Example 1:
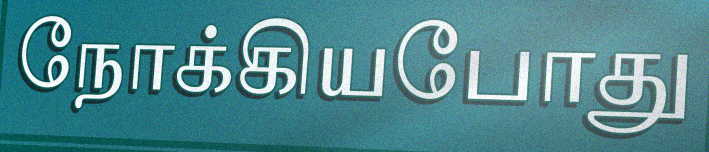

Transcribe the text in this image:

நோக்கியபோது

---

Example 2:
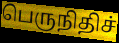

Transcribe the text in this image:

பெருநிதிச்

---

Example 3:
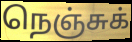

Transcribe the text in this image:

நெஞ்சுக்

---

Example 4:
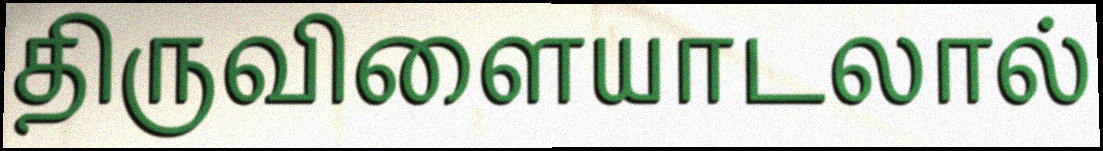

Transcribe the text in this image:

திருவிளையாடலால்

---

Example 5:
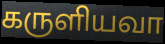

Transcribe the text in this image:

கருளியவா